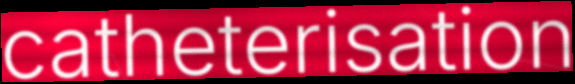
catheterisation